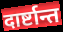
दार्ष्टान्त